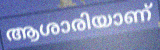
ആശാരിയാണ്